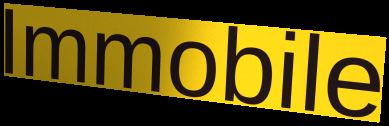
Immobile